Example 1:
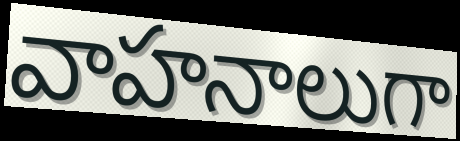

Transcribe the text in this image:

వాహనాలుగా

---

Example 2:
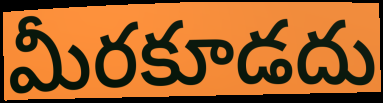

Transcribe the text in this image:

మీరకూడదు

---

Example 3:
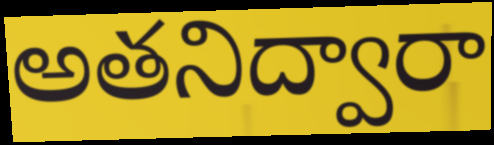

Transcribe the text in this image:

అతనిద్వారా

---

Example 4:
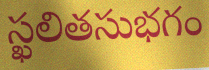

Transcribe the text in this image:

స్ఖలితసుభగం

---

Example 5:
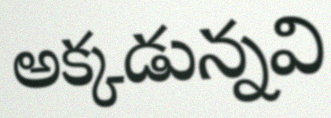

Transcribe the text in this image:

అక్కడున్నవి